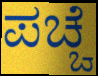
ಪಚ್ಚೆ